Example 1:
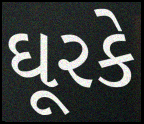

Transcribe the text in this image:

ઘૂરકે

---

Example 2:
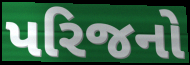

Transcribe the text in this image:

પરિજનો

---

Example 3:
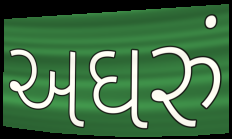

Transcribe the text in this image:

અઘરું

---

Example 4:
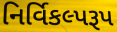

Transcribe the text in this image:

નિર્વિકલ્પરૂપ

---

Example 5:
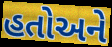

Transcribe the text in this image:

હતોઅને